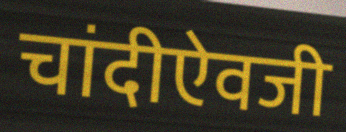
चांदीऐवजी